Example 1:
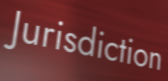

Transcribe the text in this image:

Jurisdiction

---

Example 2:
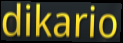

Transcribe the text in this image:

dikario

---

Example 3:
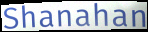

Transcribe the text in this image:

Shanahan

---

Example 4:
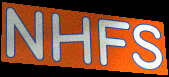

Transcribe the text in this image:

NHFS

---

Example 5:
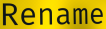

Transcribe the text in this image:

Rename